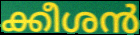
ക്കീശൻ